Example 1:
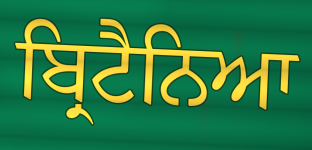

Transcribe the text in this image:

ਬ੍ਰਿਟੈਨਿਆ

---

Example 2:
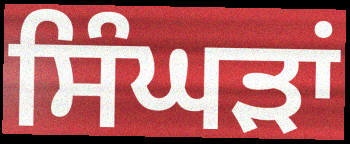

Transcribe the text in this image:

ਸਿੰਘੜਾਂ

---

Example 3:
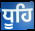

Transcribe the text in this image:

ਧੂਹਿ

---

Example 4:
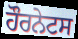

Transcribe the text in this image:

ਹੌਰਨੇਟਸ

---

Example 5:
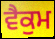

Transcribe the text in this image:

ਵੈਕੁਮ